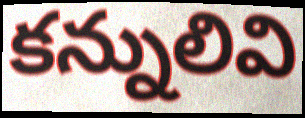
కన్నులివి